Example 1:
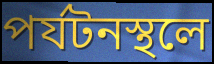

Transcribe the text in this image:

পর্যটনস্থলে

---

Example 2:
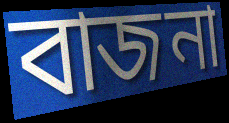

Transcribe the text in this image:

বাজনা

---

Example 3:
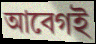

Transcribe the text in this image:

আবেগই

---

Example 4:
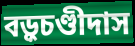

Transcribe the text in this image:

বড়ুচণ্ডীদাস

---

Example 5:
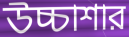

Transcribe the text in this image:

উচ্চাশার